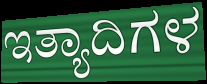
ಇತ್ಯಾದಿಗಳ